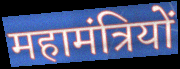
महामंत्रियों